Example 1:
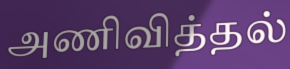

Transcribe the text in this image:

அணிவித்தல்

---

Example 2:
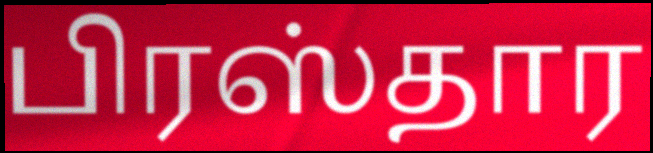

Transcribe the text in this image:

பிரஸ்தார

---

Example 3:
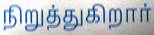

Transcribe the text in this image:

நிறுத்துகிறார்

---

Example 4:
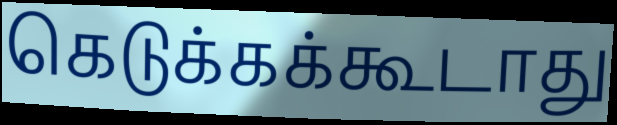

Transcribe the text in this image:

கெடுக்கக்கூடாது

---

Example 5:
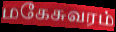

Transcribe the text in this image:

மகேசுவரம்